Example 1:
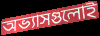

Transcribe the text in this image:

অভ্যাসগুলোই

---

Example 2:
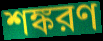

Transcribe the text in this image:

শঙ্করণ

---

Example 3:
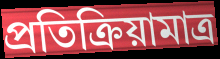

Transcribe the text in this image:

প্রতিক্রিয়ামাত্র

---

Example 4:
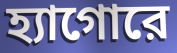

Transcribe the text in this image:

হ্যাগোরে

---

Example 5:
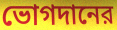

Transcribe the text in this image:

ভোগদানের